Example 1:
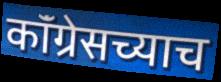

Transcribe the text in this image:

कॉंग्रेसच्याच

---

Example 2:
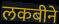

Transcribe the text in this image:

लकबीने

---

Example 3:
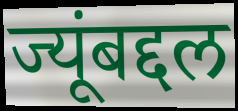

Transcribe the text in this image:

ज्यूंबद्दल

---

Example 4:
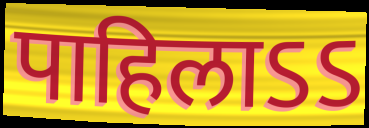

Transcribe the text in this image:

पाहिलाऽऽ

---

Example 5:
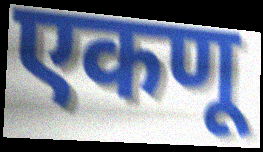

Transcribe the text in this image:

एकणू